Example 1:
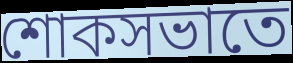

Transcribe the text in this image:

শোকসভাতে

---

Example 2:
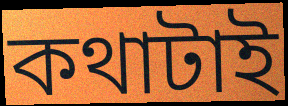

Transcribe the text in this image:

কথাটাই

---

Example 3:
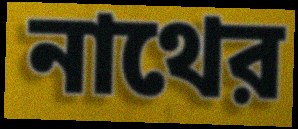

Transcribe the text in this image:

নাথের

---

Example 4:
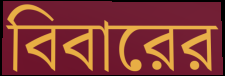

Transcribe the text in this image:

বিবারের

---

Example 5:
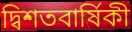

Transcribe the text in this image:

দ্বিশতবার্ষিকী